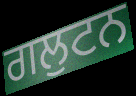
ਗਲੁਟਨ